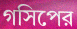
গসিপের